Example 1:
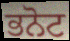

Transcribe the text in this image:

ਭਨੋਟ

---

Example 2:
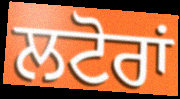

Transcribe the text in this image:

ਲਟੋਰਾਂ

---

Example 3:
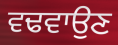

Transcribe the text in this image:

ਵਢਵਾਉਣ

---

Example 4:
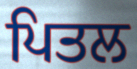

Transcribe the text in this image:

ਪਿਤਲ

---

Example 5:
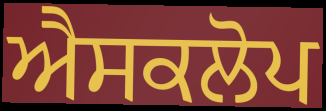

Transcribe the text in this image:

ਐਸਕਲੋਪ